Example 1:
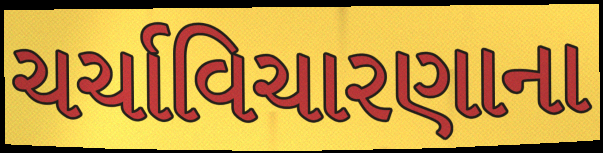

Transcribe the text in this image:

ચર્ચાવિચારણાના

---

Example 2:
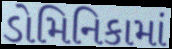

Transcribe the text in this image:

ડોમિનિકામાં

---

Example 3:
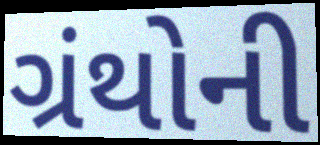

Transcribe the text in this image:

ગ્રંથોની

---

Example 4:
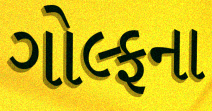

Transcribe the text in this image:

ગોલ્ફના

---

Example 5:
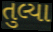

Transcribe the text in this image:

તુલ્યા